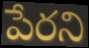
పేరని